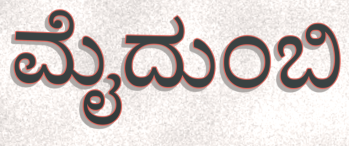
ಮೈದುಂಬಿ